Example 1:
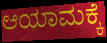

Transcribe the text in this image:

ಆಯಾಮಕ್ಕೆ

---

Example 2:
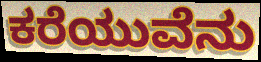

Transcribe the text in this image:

ಕರೆಯುವೆನು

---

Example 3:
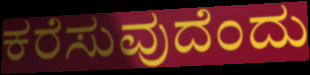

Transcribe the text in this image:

ಕರೆಸುವುದೆಂದು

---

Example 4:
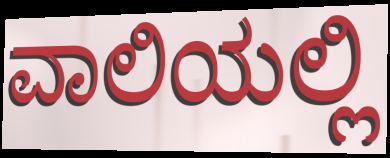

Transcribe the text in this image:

ವಾಲಿಯಲ್ಲಿ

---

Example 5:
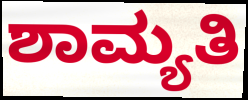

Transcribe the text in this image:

ಶಾಮ್ಯತಿ